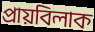
প্ৰায়বিলাক